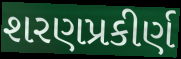
શરણપ્રકીર્ણ